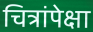
चित्रांपेक्षा